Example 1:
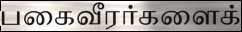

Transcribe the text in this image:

பகைவீரர்களைக்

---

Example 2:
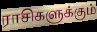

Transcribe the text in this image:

ராசிகளுக்கும்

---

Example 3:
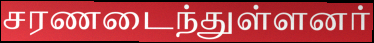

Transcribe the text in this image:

சரணடைந்துள்ளனர்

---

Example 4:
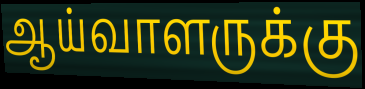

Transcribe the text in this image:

ஆய்வாளருக்கு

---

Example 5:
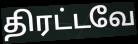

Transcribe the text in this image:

திரட்டவே